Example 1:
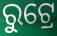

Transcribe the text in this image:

ରୁଟ୍ରେ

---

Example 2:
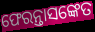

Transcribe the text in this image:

ଫେରନ୍ତାସଙ୍କେତ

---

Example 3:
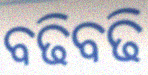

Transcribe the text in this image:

ବଢିବଢି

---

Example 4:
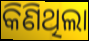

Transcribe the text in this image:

କିଣିଥିଲା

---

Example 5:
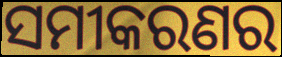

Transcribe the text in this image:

ସମୀକରଣର